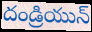
దండ్రియున్